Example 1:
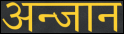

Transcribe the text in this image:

अन्जान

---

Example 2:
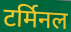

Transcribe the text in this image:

टर्मिनल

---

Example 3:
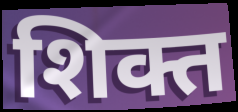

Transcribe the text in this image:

शिक्त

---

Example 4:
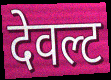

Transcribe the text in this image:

देवल्ट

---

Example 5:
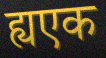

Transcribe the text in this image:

ह्यएक